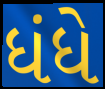
ધંધે